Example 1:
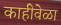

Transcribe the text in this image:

काहीवेळा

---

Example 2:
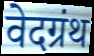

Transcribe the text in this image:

वेदग्रंथ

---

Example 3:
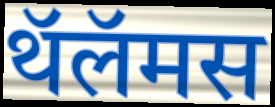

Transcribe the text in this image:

थॅलॅमस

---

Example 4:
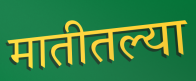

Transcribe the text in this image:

मातीतल्या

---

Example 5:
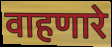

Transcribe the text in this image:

वाहणारे